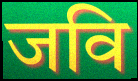
जवि